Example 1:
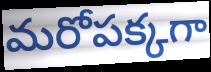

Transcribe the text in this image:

మరోపక్కగా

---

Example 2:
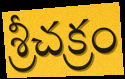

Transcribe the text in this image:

శ్రీచక్రం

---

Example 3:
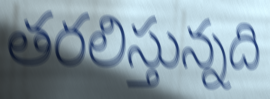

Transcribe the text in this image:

తరలిస్తున్నది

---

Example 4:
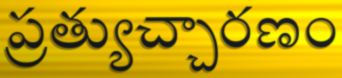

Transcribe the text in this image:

ప్రత్యుచ్చారణం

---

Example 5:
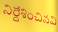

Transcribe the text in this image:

నిర్దేశించినవి